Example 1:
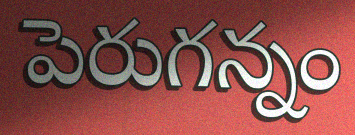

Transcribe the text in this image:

పెరుగన్నం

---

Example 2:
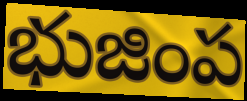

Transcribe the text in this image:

భుజింప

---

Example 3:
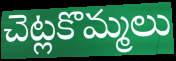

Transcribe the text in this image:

చెట్లకొమ్మలు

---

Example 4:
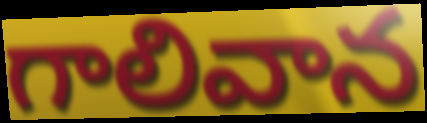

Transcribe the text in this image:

గాలివాన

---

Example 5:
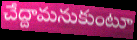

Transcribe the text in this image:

చేద్దామనుకుంటూ